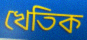
খেতিক